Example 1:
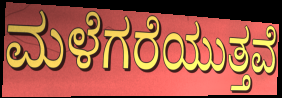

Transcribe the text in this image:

ಮಳೆಗರೆಯುತ್ತವೆ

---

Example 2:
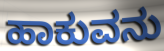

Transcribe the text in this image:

ಹಾಕುವನು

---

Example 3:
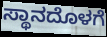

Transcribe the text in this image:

ಸ್ಥಾನದೊಳಗೆ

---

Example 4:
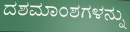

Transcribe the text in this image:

ದಶಮಾಂಶಗಳನ್ನು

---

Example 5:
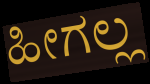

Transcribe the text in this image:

ಹೀಗಲ್ಲ